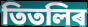
তিতলিৰ